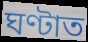
ঘণ্টাত